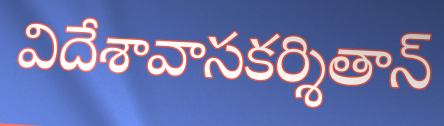
విదేశావాసకర్శితాన్